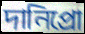
দানিপ্রো